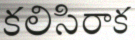
కలిసిరాక